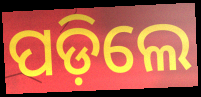
ପଡ଼ିଲେ